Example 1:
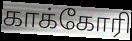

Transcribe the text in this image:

காக்கோரி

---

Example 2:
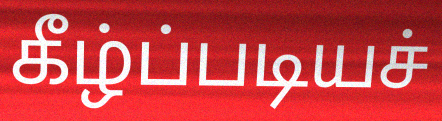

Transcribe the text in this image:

கீழ்ப்படியச்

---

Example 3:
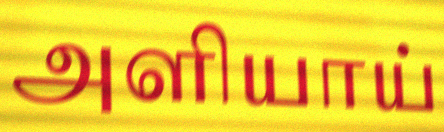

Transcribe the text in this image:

அளியாய்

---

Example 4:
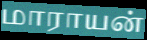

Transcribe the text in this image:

மாராயன்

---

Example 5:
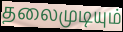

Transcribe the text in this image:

தலைமுடியும்